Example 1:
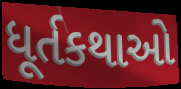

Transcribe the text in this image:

ધૂર્તકથાઓ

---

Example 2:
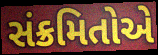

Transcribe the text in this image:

સંક્રમિતોએ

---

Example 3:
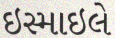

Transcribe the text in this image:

ઇસ્માઇલે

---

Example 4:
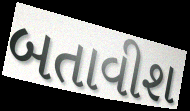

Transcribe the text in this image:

બતાવીશ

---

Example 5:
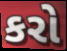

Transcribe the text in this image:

કરો